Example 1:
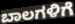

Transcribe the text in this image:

ಬಾಲಗಳಿಗೆ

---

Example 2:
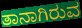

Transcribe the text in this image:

ತಾನಾಗಿರುವ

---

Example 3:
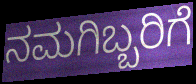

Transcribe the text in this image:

ನಮಗಿಬ್ಬರಿಗೆ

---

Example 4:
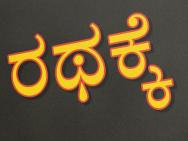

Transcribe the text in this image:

ರಥಕ್ಕೆ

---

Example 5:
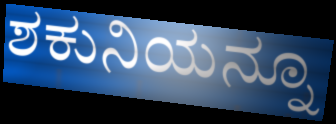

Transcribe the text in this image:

ಶಕುನಿಯನ್ನೂ